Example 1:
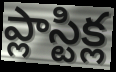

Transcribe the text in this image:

ప్లాస్టిక్ల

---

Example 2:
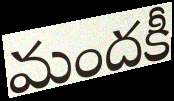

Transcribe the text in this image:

మందకీ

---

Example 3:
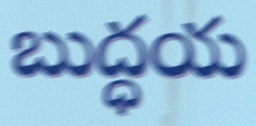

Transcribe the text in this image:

బుద్ధయ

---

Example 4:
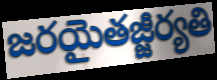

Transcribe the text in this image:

జరయైతజ్జీర్యతి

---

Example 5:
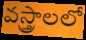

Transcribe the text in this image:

వస్త్రాలలో